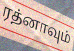
ரத்னாவும்